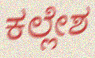
ಕಲ್ಲೇಶ